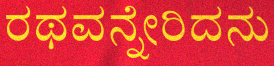
ರಥವನ್ನೇರಿದನು